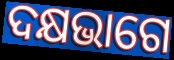
ଦକ୍ଷଭାଗେ